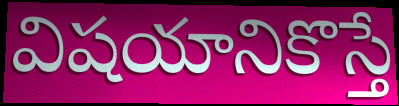
విషయానికొస్తే